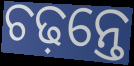
ଚଢ଼ନ୍ତେ